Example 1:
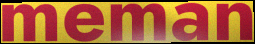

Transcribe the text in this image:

meman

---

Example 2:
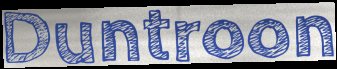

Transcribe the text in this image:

Duntroon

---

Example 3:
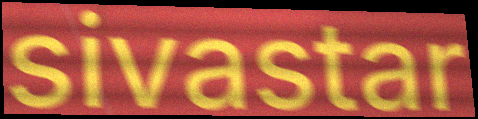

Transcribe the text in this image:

sivastar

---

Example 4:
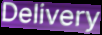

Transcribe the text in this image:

Delivery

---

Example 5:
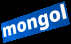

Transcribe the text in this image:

mongol